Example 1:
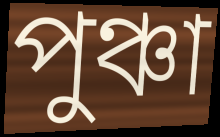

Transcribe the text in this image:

পুঞ্চা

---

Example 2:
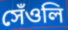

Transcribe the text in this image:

সেঁওলি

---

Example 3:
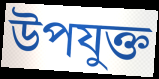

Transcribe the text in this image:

উপযুক্ত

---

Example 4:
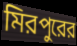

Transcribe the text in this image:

মিরপুরের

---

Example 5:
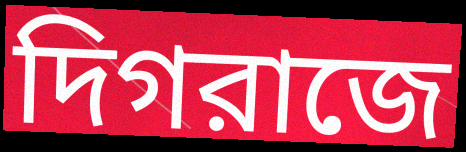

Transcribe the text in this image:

দিগরাজে